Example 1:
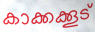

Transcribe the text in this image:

കാക്കക്കൂട്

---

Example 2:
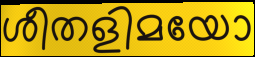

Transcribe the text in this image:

ശീതളിമയോ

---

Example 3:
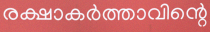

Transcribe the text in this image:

രക്ഷാകർത്താവിന്റെ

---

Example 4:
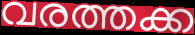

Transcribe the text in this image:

വരത്തക്ക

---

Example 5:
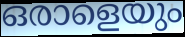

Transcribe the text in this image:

ഒരാളെയും